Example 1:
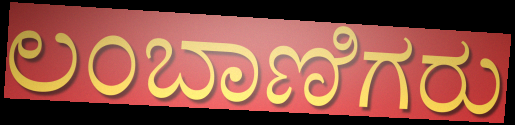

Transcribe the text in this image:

ಲಂಬಾಣಿಗರು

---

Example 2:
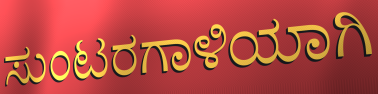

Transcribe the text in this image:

ಸುಂಟರಗಾಳಿಯಾಗಿ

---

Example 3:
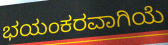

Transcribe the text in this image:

ಭಯಂಕರವಾಗಿಯೆ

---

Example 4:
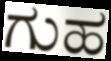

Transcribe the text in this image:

ಗುಹ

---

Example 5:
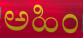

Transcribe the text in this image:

ಅಹಿಂ